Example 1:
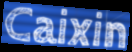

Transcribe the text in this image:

Caixin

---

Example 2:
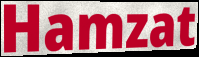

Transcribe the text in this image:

Hamzat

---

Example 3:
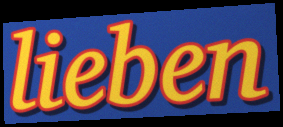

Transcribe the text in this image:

lieben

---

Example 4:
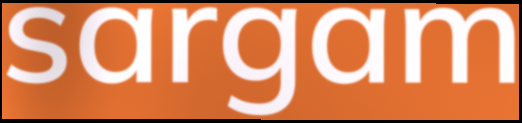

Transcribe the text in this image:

sargam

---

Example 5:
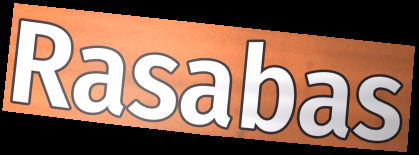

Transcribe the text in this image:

Rasabas